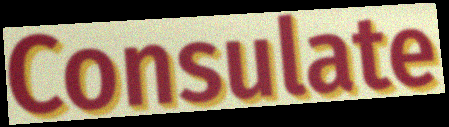
Consulate